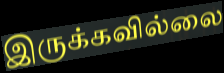
இருக்கவில்லை